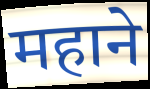
महाने